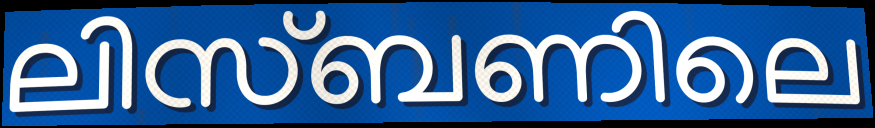
ലിസ്ബണിലെ